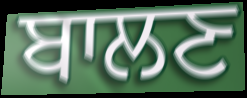
ਬਾਲਣ